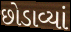
છોડાવ્યાં